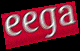
eega